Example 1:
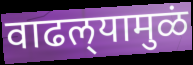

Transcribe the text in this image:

वाढल्यामुळं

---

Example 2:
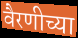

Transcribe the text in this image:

वैरणीच्या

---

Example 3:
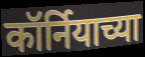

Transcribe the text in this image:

कॉर्नियाच्या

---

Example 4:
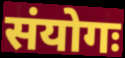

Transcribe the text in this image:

संयोगः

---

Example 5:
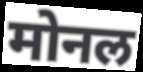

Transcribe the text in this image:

मोनल